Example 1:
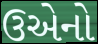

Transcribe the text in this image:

ઉએનો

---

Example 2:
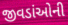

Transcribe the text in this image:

જીવડાંઓની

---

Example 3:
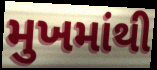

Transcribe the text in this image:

મુખમાંથી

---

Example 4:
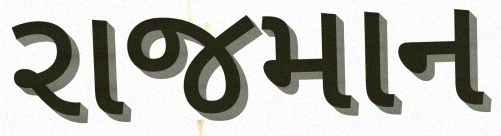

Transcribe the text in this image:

રાજમાન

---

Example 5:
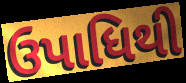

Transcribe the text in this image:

ઉપાધિથી